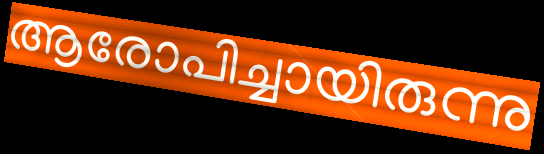
ആരോപിച്ചായിരുന്നു